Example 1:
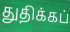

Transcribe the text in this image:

துதிக்கப்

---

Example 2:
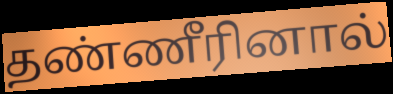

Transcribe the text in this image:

தண்ணீரினால்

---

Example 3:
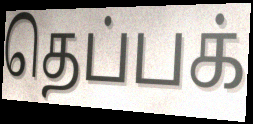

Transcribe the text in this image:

தெப்பக்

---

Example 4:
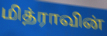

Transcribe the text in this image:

மித்ராவின்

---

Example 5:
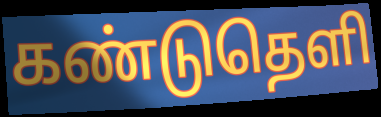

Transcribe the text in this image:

கண்டுதெளி